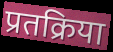
प्रतक्रिया